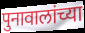
पुनावालांच्या